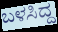
ಬಳಸಿದ್ದ